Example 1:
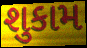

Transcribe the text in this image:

શુકામ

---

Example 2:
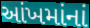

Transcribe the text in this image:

આંખમાંનાં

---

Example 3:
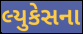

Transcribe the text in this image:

લ્યુકેસના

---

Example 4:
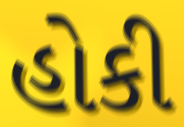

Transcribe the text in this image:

હોકી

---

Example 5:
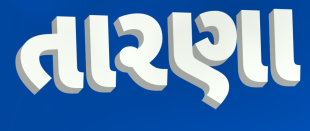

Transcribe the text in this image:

તારણા